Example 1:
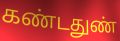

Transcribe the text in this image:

கண்டதுண்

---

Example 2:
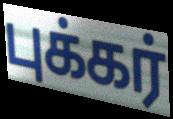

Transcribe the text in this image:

புக்கர்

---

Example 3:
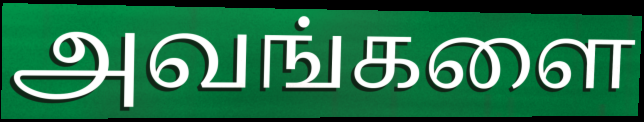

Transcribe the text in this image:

அவங்களை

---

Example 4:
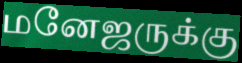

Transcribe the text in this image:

மனேஜருக்கு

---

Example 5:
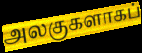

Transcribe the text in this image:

அலகுகளாகப்